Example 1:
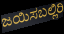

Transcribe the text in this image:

ಜಯಿಸಬಲ್ಲಿರಿ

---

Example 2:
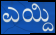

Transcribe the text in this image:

ಎಯ್ದಿ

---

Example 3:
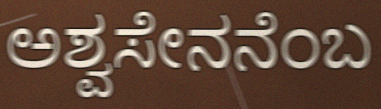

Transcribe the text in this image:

ಅಶ್ವಸೇನನೆಂಬ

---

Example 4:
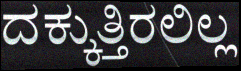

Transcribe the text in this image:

ದಕ್ಕುತ್ತಿರಲಿಲ್ಲ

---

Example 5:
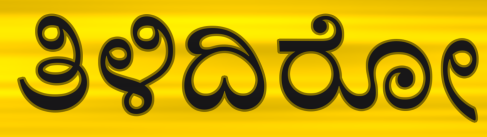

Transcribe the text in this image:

ತಿಳಿದಿರೋ